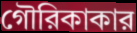
গৌরিকাকার